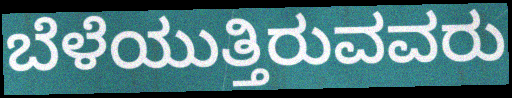
ಬೆಳೆಯುತ್ತಿರುವವರು